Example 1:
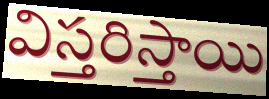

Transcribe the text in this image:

విస్తరిస్తాయి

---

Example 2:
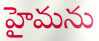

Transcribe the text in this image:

హైమను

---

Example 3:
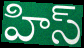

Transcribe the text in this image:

హిస్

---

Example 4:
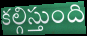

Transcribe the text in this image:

కల్గిస్తుంది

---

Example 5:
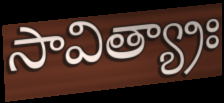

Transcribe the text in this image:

సావిత్య్రాః